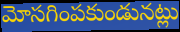
మోసగింపకుండునట్లు